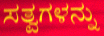
ಸತ್ವಗಳನ್ನು